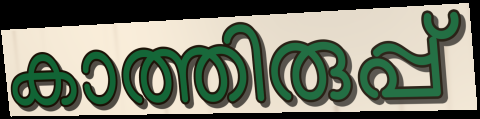
കാത്തിരുപ്പ്